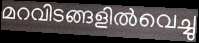
മറവിടങ്ങളിൽവെച്ചു